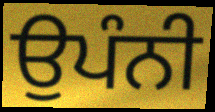
ਉਪੰਨੀ